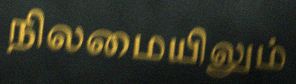
நிலமையிலும்